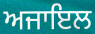
ਅਜਾਇਲ